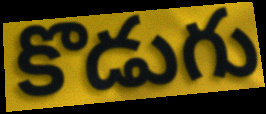
కొడుగు